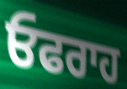
ਓਫਰਾਹ